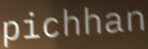
pichhan